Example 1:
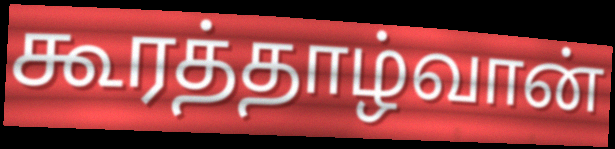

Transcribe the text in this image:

கூரத்தாழ்வான்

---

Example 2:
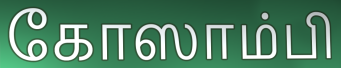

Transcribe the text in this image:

கோஸாம்பி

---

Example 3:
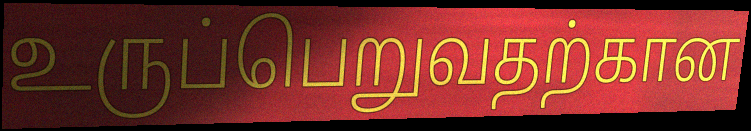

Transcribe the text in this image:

உருப்பெறுவதற்கான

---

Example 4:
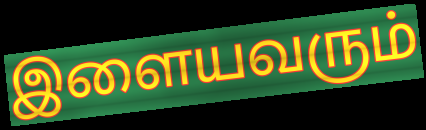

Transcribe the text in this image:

இளையவரும்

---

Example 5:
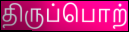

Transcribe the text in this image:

திருப்பொற்